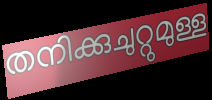
തനിക്കുചുറ്റുമുള്ള